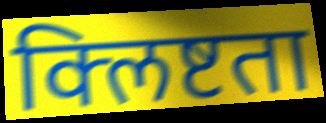
क्‍लिष्टता